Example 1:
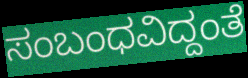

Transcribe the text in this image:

ಸಂಬಂಧವಿದ್ದಂತೆ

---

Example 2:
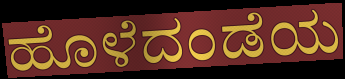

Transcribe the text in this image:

ಹೊಳೆದಂಡೆಯ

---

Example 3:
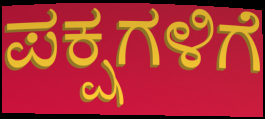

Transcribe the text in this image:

ಪಕ್ಷಗಳಿಗೆ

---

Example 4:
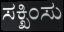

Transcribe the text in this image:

ಸಕ್ಖಿಂಸು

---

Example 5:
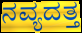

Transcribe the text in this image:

ನವ್ಯದತ್ತ